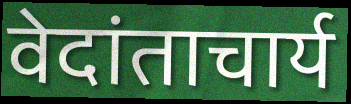
वेदांताचार्य